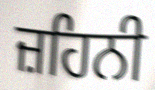
ਜ਼ਹਿਨੀ